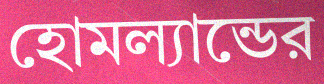
হোমল্যান্ডের